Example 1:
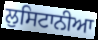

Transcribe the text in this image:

ਲੁਸਿਟਾਨੀਆ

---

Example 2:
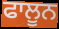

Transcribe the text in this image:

ਫਾਲੂਨ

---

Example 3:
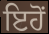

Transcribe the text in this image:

ਇਹੋਂ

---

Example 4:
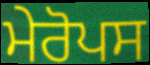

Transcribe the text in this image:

ਮੇਰੋਪਸ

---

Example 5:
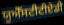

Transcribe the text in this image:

ਯੂਐੱਸਟੀਟੀਏਡੀ